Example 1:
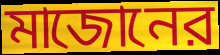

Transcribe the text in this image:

মাজোনের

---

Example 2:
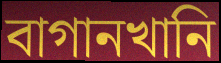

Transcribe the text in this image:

বাগানখানি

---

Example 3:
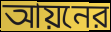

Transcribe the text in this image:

আয়নের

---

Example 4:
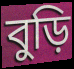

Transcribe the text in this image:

বুড়ি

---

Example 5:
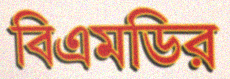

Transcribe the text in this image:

বিএমডির